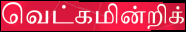
வெட்கமின்றிக்